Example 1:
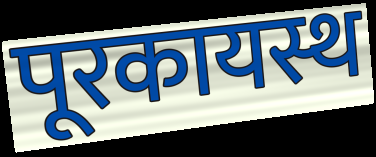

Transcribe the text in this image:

पूरकायस्थ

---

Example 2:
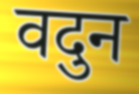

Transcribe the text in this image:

वदुन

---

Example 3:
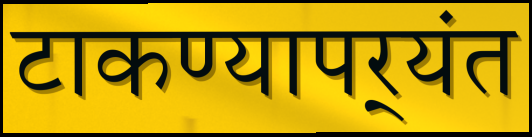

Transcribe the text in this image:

टाकण्यापर्यंत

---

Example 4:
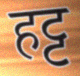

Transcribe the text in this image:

हट्ट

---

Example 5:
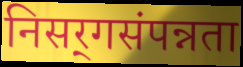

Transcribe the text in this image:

निसर्गसंपन्नता